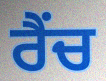
ਰੈਂਚ